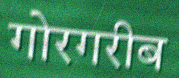
गोरगरीब